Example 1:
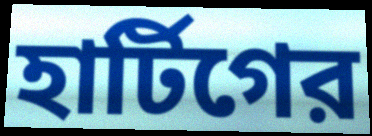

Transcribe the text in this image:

হার্টিগের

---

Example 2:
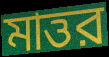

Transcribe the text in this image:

মাত্তর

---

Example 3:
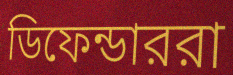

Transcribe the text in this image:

ডিফেন্ডাররা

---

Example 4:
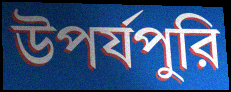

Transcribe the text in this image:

উপর্যপুরি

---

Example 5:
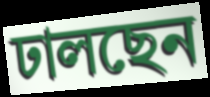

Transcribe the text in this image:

ঢালছেন